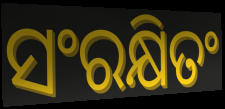
ସଂରକ୍ଷିତଂ